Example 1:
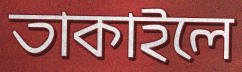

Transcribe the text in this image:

তাকাইলে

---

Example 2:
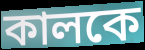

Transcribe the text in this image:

কালকে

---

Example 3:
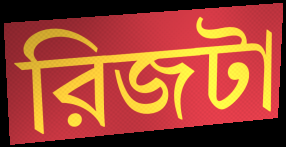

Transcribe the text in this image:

রিজটা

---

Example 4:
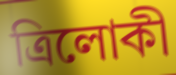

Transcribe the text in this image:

ত্রিলোকী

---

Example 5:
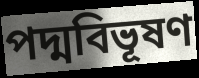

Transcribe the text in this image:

পদ্মবিভূষণ